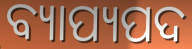
ବ୍ୟାପ୍ୟପଦ